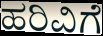
ಹರಿವಿಗೆ